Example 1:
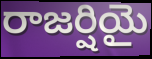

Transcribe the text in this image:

రాజర్షియై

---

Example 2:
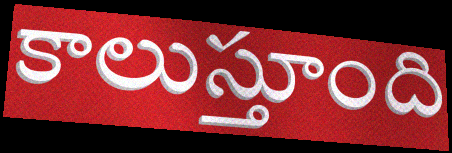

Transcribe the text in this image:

కాలుస్తూంది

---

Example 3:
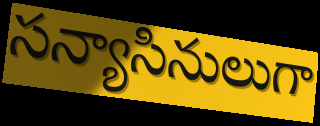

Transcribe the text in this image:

సన్యాసినులుగా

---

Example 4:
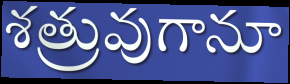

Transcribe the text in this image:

శత్రువుగానూ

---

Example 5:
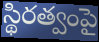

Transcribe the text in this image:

స్థిరత్వంపై